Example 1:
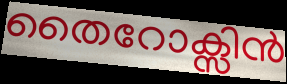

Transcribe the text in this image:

തൈറോക്സിൻ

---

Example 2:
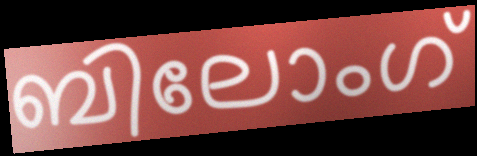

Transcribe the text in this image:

ബിലോംഗ്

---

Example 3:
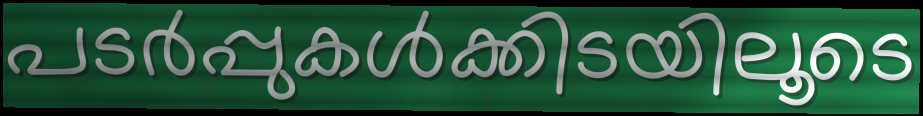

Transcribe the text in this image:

പടർപ്പുകൾക്കിടയിലൂടെ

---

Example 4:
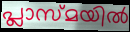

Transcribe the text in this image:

പ്ലാസ്മയിൽ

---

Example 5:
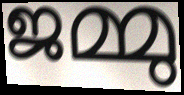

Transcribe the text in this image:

ജമ്മു